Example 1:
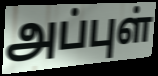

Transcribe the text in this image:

அப்புள்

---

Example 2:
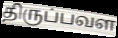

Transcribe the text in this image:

திருப்பவள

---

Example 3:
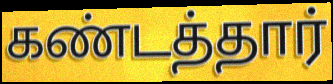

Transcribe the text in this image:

கண்டத்தார்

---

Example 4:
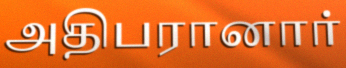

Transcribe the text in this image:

அதிபரானார்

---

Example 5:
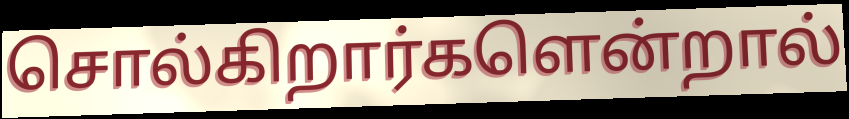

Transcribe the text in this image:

சொல்கிறார்களென்றால்